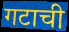
गटाची